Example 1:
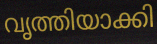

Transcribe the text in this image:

വൃത്തിയാക്കി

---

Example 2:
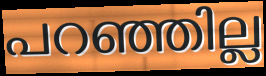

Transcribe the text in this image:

പറഞ്ഞില്ല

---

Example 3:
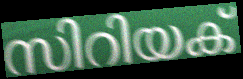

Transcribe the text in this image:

സിറിയക്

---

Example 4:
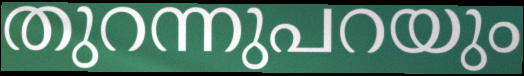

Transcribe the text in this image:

തുറന്നുപറയും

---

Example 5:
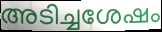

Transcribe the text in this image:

അടിച്ചശേഷം